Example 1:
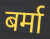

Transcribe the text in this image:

बर्मा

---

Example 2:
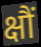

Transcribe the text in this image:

क्षौं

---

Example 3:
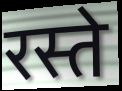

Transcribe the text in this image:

रस्ते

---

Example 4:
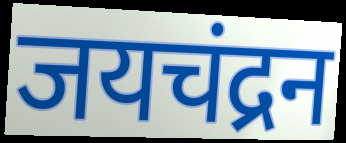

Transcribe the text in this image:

जयचंद्रन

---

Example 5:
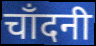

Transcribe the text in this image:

चाँदनी